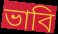
ভাবি